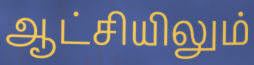
ஆட்சியிலும்